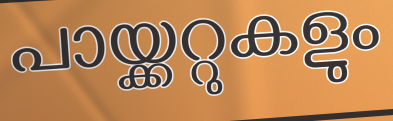
പായ്ക്കറ്റുകളും